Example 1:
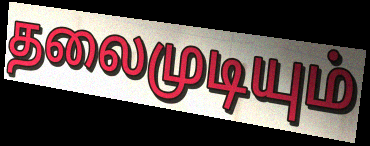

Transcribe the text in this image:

தலைமுடியும்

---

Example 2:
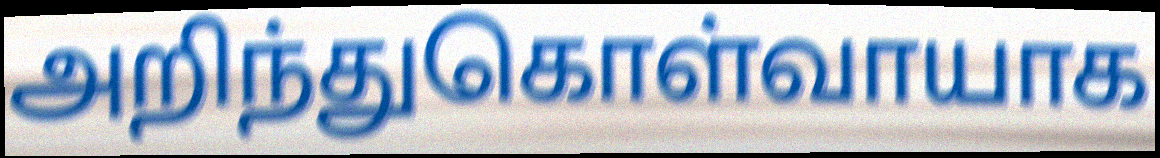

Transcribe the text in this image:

அறிந்துகொள்வாயாக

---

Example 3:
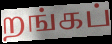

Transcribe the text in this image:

றங்கப்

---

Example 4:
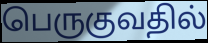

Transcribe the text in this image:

பெருகுவதில்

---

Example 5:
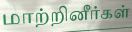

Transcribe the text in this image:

மாற்றினீர்கள்